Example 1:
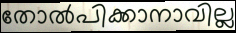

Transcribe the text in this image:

തോൽപിക്കാനാവില്ല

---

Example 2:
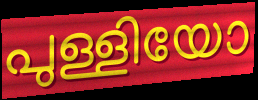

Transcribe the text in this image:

പുള്ളിയോ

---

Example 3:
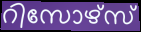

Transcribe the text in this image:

റിസോഴ്സ്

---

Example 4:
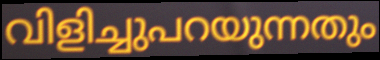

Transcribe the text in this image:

വിളിച്ചുപറയുന്നതും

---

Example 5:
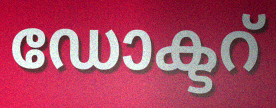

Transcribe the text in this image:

ഡോക്ടറ്